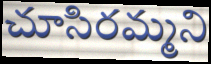
చూసిరమ్మని